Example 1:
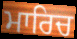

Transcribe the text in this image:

ਮਾਰਿਚ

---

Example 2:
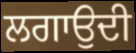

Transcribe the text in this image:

ਲਗਾਉਦੀ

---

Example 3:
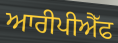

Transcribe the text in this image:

ਆਰੀਪੀਐੱਫ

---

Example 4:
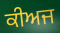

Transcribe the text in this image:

ਕੀਅਜ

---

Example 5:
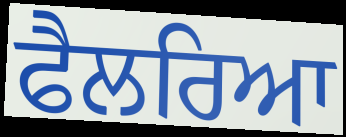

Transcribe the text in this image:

ਫੈਲਰਿਆ